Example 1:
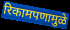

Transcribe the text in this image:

रिकामपणामुळे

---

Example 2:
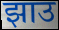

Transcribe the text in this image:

झाउ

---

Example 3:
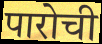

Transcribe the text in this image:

पारोची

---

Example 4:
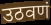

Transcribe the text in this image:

उठवणं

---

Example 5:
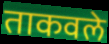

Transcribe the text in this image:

ताकवले